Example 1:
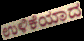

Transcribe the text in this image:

ಉಳಿಕೆಯಾದ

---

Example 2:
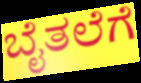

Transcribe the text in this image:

ಬೈತಲೆಗೆ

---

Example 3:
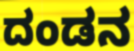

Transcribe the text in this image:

ದಂಡನ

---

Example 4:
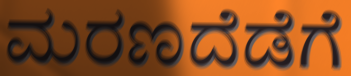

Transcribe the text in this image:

ಮರಣದೆಡೆಗೆ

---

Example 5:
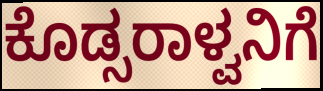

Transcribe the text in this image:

ಕೊಡ್ಸರಾಳ್ವನಿಗೆ